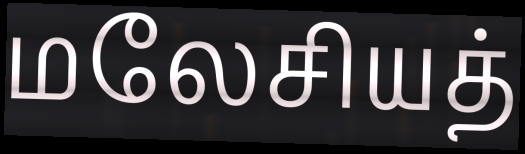
மலேசியத்